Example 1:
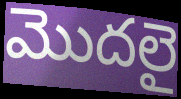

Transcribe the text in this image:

మొదలై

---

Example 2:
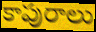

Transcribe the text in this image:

కాపురాలు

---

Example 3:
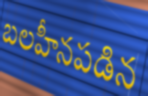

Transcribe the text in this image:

బలహీనపడిన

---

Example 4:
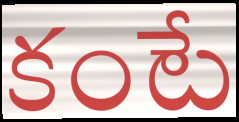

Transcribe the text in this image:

కంటే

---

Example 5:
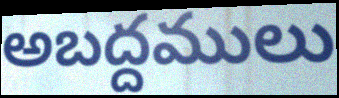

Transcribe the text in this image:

అబద్దములు